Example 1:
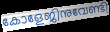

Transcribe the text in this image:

കോളേജിനുവേണ്ടി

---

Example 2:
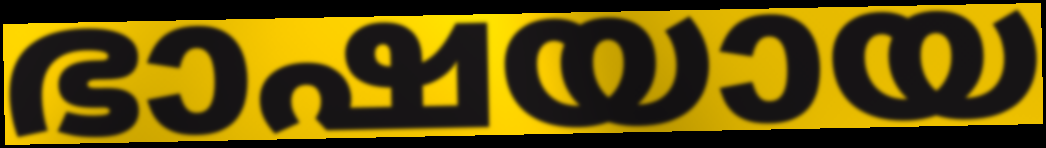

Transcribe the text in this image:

ഭാഷയായ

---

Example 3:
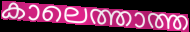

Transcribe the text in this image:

കാലെത്താത്ത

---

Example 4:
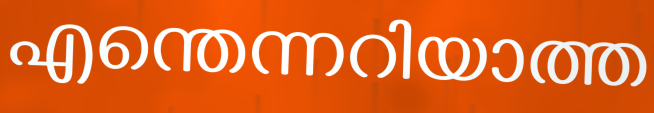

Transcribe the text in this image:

എന്തെന്നറിയാത്ത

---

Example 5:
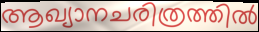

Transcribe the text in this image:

ആഖ്യാനചരിത്രത്തിൽ